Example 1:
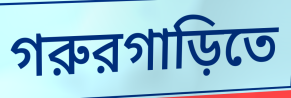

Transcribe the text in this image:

গরুরগাড়িতে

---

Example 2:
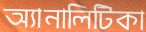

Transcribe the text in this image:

অ্যানালিটিকা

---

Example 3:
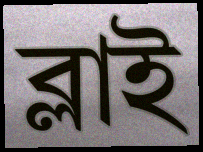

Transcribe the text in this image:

ব্লাই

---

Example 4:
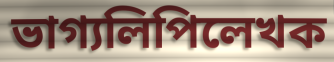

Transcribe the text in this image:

ভাগ্যলিপিলেখক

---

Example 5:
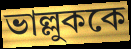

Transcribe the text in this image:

ভাল্লুককে